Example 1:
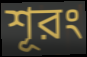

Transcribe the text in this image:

শূরং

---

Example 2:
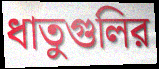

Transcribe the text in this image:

ধাতুগুলির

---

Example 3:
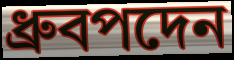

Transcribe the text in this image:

ধ্রুবপদেন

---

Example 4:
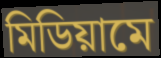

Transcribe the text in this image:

মিডিয়ামে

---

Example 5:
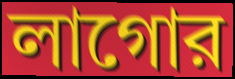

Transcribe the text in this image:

লাগোর